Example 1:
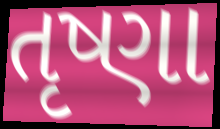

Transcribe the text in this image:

તૃષ્ણા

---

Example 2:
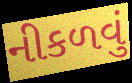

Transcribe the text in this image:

નીકળવું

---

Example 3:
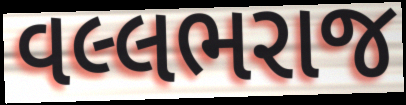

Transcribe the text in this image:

વલ્લભરાજ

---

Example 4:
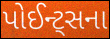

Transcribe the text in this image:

પોઈન્ટ્સના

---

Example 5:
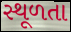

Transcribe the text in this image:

સ્થૂળતા